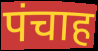
पंचाह